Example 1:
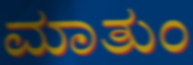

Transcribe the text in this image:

ಮಾತುಂ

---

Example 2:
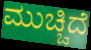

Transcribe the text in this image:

ಮುಚ್ಚಿದೆ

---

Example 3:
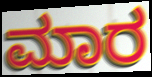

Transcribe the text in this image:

ಮಾರ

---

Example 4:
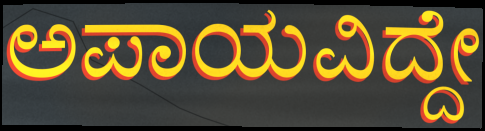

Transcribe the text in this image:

ಅಪಾಯವಿದ್ದೇ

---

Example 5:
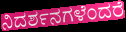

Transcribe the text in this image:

ನಿದರ್ಶನಗಳೆಂದರೆ